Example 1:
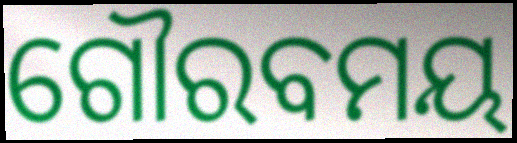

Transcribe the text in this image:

ଗୌରବମୟ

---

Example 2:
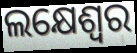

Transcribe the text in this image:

ଲକ୍ଷେଶ୍ୱର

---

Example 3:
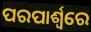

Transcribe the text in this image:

ପରପାର୍ଶ୍ୱରେ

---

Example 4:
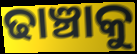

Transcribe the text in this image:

ଢାଞ୍ଚାକୁ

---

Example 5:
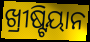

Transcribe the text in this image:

ଖ୍ରୀଷ୍ଟିୟାନ